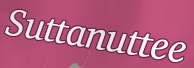
Suttanuttee